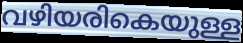
വഴിയരികെയുള്ള